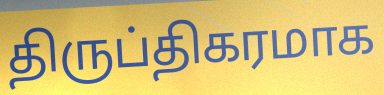
திருப்திகரமாக